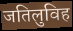
जतिलुविह